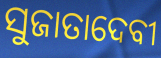
ସୁଜାତାଦେବୀ